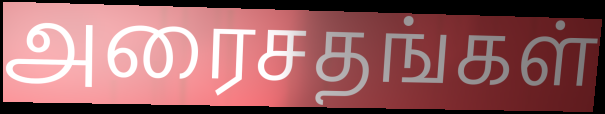
அரைசதங்கள்